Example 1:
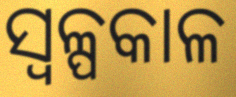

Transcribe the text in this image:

ସ୍ୱଳ୍ପକାଳ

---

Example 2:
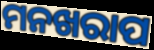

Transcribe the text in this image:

ମନଖରାପ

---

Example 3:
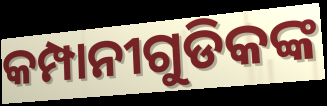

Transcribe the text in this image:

କମ୍ପାନୀଗୁଡିକଙ୍କ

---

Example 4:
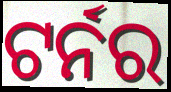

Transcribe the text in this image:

ଟର୍ନର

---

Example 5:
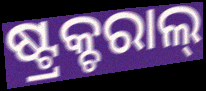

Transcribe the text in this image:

ଷ୍ଟ୍ରକ୍ଚରାଲ୍